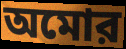
অমোর